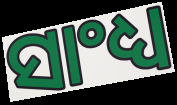
ସାଂଧ୍ୟ